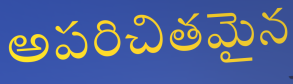
అపరిచితమైన